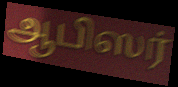
ஆபிஸர்